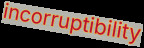
incorruptibility